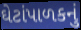
ઘેટાંપાળકનું